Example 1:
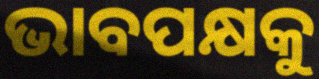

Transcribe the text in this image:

ଭାବପକ୍ଷକୁ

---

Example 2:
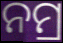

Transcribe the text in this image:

ନମ୍ର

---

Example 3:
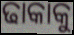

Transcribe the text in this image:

ଢାକାକୁ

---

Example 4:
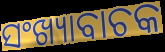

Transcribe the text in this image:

ସଂଖ୍ୟାବାଚକ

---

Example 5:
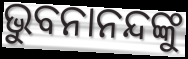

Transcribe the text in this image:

ଭୁବନାନନ୍ଦଙ୍କୁ